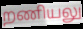
றணியலு